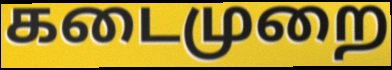
கடைமுறை